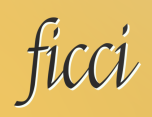
ficci